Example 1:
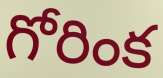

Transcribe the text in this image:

గోరింక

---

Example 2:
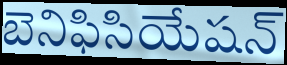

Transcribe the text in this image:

బెనిఫిసియేషన్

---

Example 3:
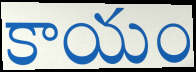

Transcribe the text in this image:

కాయం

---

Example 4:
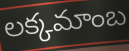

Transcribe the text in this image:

లక్కమాంబ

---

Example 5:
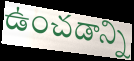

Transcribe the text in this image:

ఉంచడాన్ని